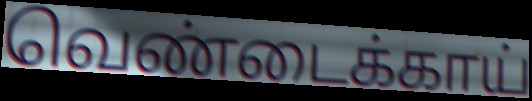
வெண்டைக்காய்